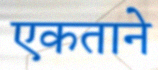
एकताने